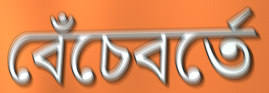
বেঁচেবর্তে